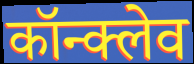
कॉन्क्लेव